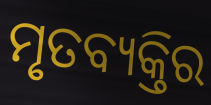
ମୃତବ୍ୟକ୍ତିର